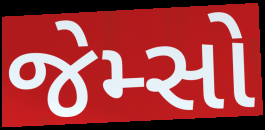
જેમ્સો